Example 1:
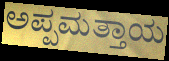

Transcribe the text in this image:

ಅಪ್ಪಮತ್ತಾಯ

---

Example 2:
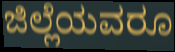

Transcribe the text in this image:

ಜಿಲ್ಲೆಯವರೂ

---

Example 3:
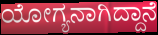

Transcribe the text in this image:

ಯೋಗ್ಯನಾಗಿದ್ದಾನೆ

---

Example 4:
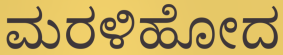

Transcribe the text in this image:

ಮರಳಿಹೋದ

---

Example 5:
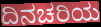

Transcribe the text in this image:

ದಿನಚರಿಯ